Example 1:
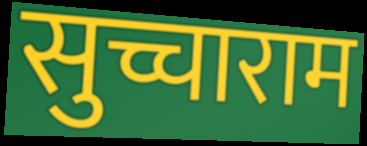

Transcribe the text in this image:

सुच्चाराम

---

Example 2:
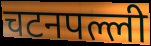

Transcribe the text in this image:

चटनपल्ली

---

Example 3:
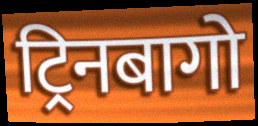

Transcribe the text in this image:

ट्रिनबागो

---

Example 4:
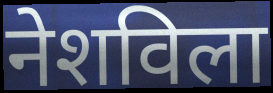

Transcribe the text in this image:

नेशविला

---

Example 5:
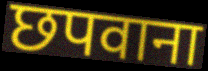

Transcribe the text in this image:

छपवाना